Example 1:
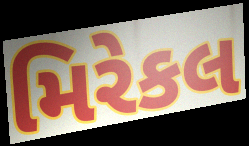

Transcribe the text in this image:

મિરેકલ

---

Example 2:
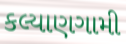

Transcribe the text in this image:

કલ્યાણગામી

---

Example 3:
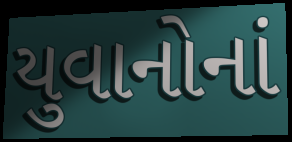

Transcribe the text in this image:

યુવાનોનાં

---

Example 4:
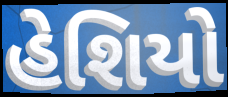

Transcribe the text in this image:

હેશિયો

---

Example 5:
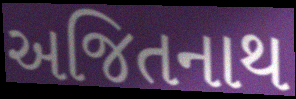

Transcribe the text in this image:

અજિતનાથ